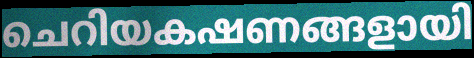
ചെറിയകഷണങ്ങളായി